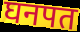
घनपत